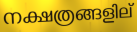
നക്ഷത്രങ്ങളില്